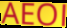
AEOI